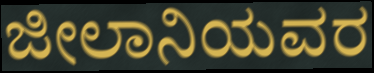
ಜೀಲಾನಿಯವರ